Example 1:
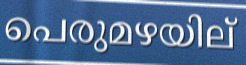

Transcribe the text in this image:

പെരുമഴയില്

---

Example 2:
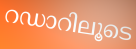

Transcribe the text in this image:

റഡാറിലൂടെ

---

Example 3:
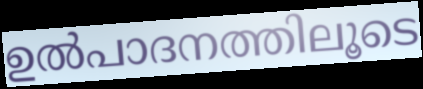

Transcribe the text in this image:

ഉൽപാദനത്തിലൂടെ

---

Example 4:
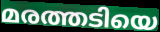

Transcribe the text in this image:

മരത്തടിയെ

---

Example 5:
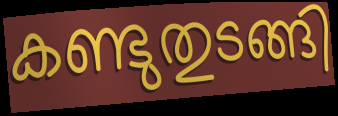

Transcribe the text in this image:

കണ്ടുതുടങ്ങി